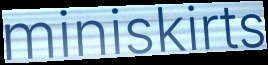
miniskirts